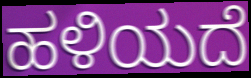
ಹಳಿಯದೆ